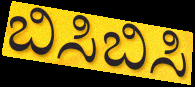
ಬಿಸಿಬಿಸಿ